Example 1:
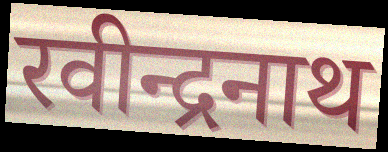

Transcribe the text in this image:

रवीन्द्रनाथ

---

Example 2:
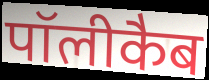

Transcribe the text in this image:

पॉलीकैब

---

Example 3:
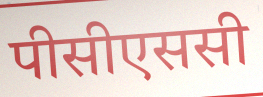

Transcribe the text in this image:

पीसीएससी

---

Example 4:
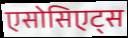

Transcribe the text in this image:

एसोसिएट्स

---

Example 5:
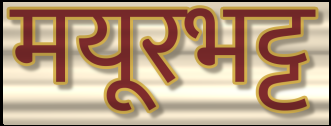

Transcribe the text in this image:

मयूरभट्ट